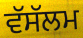
ਵੱਸੱਲਮ